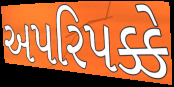
અપરિપક્કે